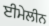
ਈਮੇਲੀਨ